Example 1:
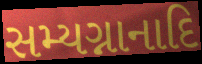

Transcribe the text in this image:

સમ્યગ્નાનાદિ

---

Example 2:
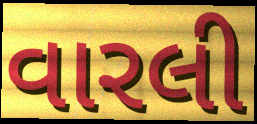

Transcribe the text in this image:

વારલી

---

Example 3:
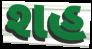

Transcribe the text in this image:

શહ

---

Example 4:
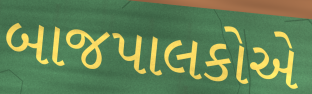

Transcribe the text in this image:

બાજપાલકોએ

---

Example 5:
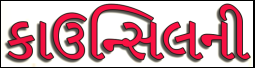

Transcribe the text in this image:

કાઉન્સિલની